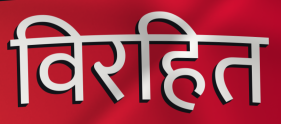
विरहित